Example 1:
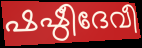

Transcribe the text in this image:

ഷഷ്ഠീദേവീ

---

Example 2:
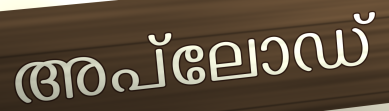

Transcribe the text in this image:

അപ്‌ലോഡ്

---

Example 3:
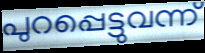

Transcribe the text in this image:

പുറപ്പെട്ടുവന്ന്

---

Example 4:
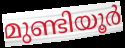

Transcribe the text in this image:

മുണ്ടിയൂർ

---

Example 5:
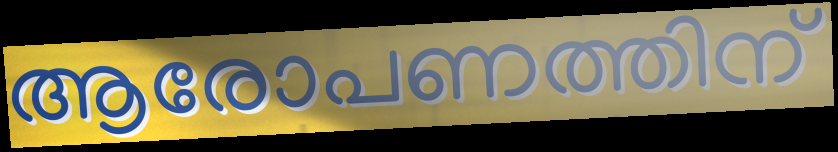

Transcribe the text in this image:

ആരോപണത്തിന്